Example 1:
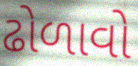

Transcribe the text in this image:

ઢોળાવો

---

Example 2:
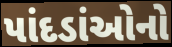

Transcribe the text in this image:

પાંદડાંઓનો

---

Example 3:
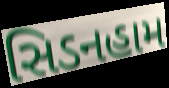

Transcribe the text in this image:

સિડનહામ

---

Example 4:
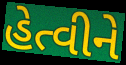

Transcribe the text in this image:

હેત્વીને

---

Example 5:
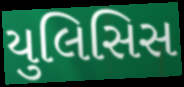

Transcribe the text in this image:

યુલિસિસ